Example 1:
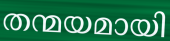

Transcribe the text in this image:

തന്മയമായി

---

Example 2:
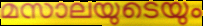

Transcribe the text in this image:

മസാലയുടെയും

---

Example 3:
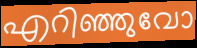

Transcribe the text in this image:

എറിഞ്ഞുവോ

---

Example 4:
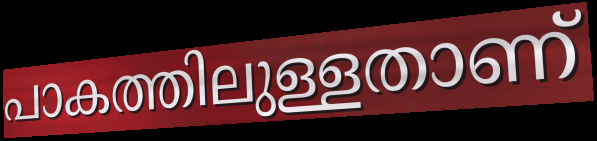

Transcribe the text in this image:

പാകത്തിലുള്ളതാണ്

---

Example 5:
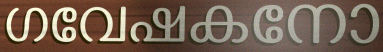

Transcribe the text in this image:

ഗവേഷകനോ